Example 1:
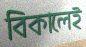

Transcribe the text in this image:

বিকালেই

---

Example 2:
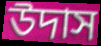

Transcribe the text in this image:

উদাস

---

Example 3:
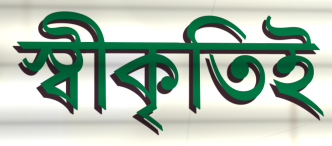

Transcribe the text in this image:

স্বীকৃতিই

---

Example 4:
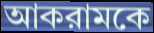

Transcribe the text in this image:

আকরামকে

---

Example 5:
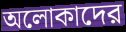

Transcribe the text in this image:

অলোকাদের